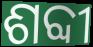
ଶବ୍ଦୀ